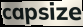
capsize